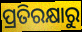
ପ୍ରତିରକ୍ଷାରୁ